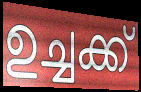
ഉച്ചക്ക്